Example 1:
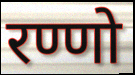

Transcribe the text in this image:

रण्णो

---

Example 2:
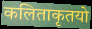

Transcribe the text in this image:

कलिताकृतयो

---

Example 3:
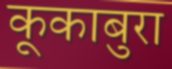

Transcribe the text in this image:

कूकाबुरा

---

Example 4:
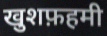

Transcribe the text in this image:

खुशफ़हमी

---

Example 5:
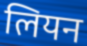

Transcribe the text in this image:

लियन